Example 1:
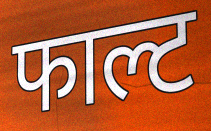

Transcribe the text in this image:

फाल्ट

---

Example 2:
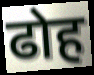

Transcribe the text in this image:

ढोह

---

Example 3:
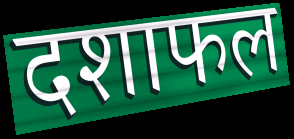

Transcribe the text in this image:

दशाफल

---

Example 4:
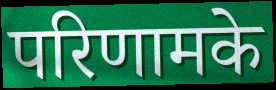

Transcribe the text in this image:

परिणामके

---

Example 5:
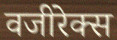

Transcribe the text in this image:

वजीरेक्स